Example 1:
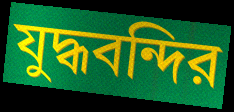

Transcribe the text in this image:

যুদ্ধবন্দির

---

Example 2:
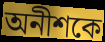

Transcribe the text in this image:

অনীশকে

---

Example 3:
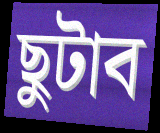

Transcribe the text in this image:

ছুটাব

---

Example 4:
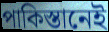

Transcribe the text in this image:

পাকিস্তানেই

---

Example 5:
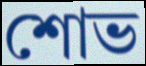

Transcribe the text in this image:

শোভ